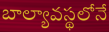
బాల్యావస్థలోనే